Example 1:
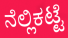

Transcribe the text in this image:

ನೆಲ್ಲಿಕಟ್ಟೆ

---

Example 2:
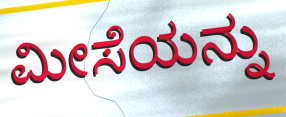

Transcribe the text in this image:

ಮೀಸೆಯನ್ನು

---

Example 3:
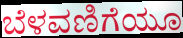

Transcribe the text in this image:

ಬೆಳವಣಿಗೆಯೂ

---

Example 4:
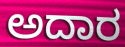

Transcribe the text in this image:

ಅದಾರ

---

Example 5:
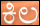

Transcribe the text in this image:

ಕಿಲ